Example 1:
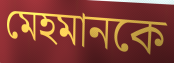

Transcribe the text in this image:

মেহমানকে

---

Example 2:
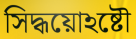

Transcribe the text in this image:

সিদ্ধয়োঽষ্টৌ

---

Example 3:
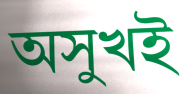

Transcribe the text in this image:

অসুখই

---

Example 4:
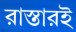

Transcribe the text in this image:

রাস্তারই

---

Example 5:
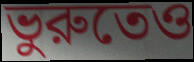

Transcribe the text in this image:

ভুরুতেও